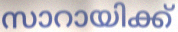
സാറായിക്ക്